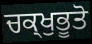
ਚਕ੍ਖੁਭੂਤੋ